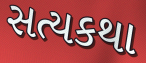
સત્યકથા